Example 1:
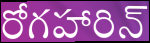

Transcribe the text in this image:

రోగహారిన్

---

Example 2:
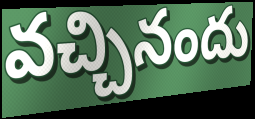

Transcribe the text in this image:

వచ్చినందు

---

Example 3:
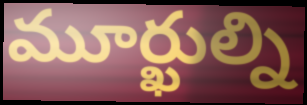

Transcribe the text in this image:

మూర్ఖుల్ని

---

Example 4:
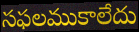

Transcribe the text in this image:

సఫలముకాలేదు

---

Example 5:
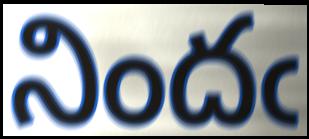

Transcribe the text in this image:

నిందఁ